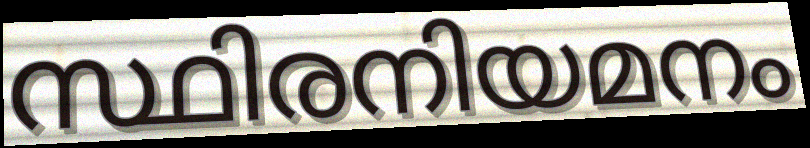
സ്ഥിരനിയമനം